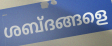
ശബ്ദങ്ങളെ